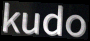
kudo